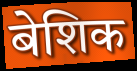
बेशिक